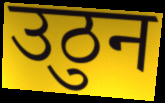
उठुन